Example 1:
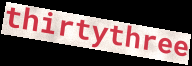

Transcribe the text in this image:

thirtythree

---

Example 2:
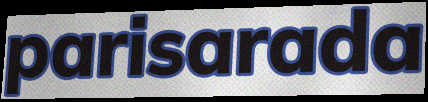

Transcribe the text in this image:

parisarada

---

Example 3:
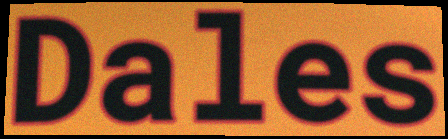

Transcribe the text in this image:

Dales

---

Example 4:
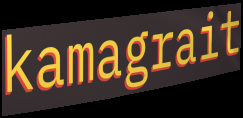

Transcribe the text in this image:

kamagrait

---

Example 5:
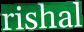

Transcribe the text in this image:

rishal